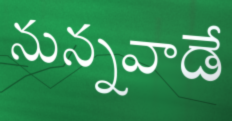
నున్నవాడే